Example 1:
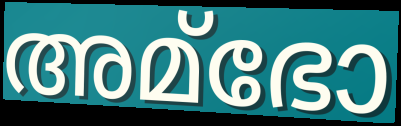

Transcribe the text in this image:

അമ്ഭോ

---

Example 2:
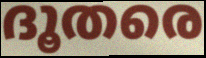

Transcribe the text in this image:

ദൂതരെ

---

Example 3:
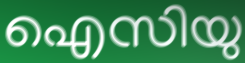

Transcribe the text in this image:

ഐസിയു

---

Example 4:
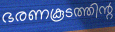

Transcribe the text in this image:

ഭരണകൂടത്തിന്റ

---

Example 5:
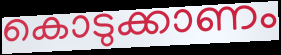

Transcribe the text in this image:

കൊടുക്കാണം